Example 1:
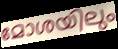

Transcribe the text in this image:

മോശയിലും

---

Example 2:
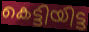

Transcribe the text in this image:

കെട്ടിയിട്ട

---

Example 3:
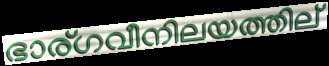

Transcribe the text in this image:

ഭാര്ഗവീനിലയത്തില്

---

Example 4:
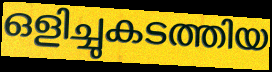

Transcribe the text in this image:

ഒളിച്ചുകടത്തിയ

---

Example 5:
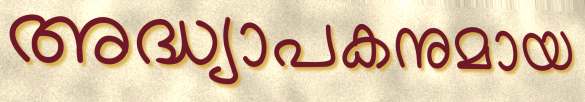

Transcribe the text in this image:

അദ്ധ്യാപകനുമായ